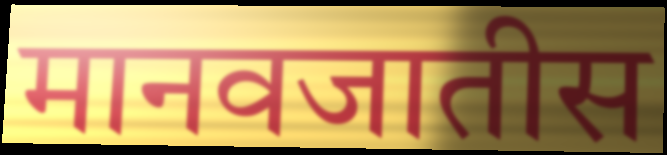
मानवजातीस